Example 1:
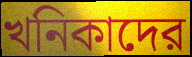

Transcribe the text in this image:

খনিকাদের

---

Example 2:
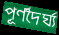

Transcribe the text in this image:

পূর্ণদৈর্ঘ্য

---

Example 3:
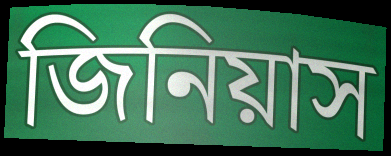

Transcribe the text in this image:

জিনিয়াস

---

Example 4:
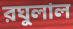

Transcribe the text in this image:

রঘুলাল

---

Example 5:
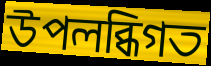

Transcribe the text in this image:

উপলব্ধিগত